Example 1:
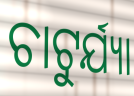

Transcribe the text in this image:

ଚାଟୁର୍ଯ୍ୟା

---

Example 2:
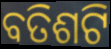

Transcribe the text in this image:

ବତିଶଟି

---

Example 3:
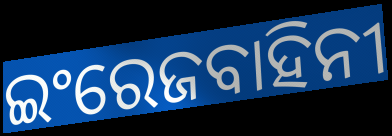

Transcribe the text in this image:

ଇଂରେଜବାହିନୀ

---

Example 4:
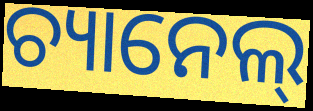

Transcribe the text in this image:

ଚ୍ୟାନେଲ୍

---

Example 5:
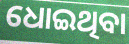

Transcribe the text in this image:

ଧୋଇଥିବା